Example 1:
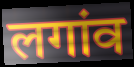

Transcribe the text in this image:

लगांव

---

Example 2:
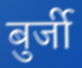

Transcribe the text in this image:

बुर्जी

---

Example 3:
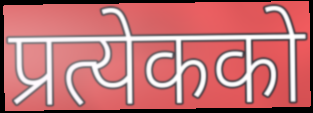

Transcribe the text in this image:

प्रत्येकको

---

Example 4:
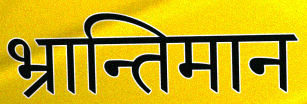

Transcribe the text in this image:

भ्रान्तिमान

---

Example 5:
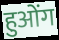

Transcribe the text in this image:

हुओंग